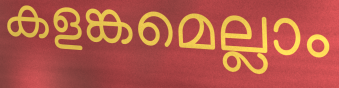
കളങ്കമെല്ലാം